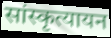
सांस्कृत्यायन